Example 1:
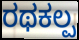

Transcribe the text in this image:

ರಥಕಲ್ಪ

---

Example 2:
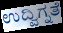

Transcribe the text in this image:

ಉದ್ವಿಗ್ನತೆ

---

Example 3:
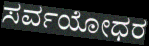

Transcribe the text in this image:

ಸರ್ವಯೋಧರ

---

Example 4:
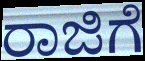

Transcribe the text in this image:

ರಾಜಿಗೆ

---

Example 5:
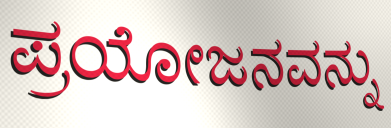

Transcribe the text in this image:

ಪ್ರಯೋಜನವನ್ನು